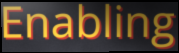
Enabling